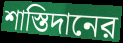
শাস্তিদানের